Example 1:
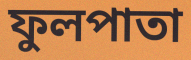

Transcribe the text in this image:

ফুলপাতা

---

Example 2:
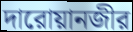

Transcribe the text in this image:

দারোয়ানজীর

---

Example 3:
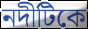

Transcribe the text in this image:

নদীটিকে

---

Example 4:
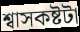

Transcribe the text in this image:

শ্বাসকষ্টটা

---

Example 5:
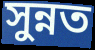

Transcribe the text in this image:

সুন্নত